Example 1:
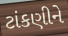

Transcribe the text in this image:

ટાંકણીને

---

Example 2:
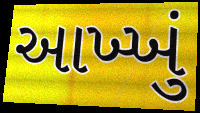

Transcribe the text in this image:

આખ્ખું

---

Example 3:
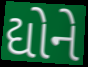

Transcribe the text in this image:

દ્યોને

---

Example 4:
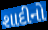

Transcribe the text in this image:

શાદીનો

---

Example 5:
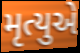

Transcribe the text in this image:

મૃત્યુએ